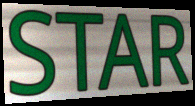
STAR